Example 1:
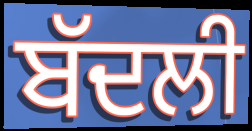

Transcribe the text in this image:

ਬੱਦਲੀ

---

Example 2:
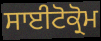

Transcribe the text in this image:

ਸਾਈਟੋਕ੍ਰੋਮ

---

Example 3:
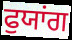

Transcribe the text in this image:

ਫੁਯਾਂਗ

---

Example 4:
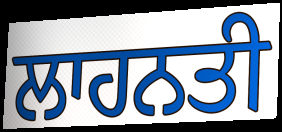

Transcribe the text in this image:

ਲਾਹਨਤੀ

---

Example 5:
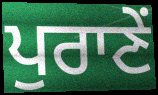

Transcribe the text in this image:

ਪੁਰਾਣੇਂ